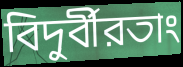
বিদুর্বীরতাং